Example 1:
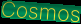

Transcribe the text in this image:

Cosmos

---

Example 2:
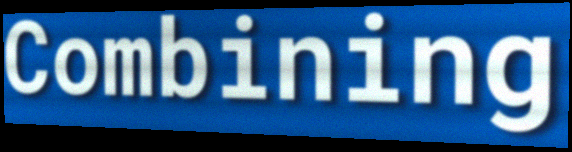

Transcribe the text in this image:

Combining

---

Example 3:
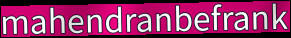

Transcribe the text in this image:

mahendranbefrank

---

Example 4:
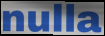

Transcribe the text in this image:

nulla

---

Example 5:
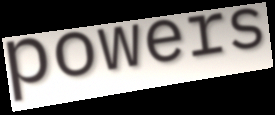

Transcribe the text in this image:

powers